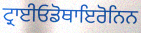
ਟ੍ਰਾਈਓਡੋਥਾਇਰੋਨਿਨ